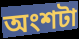
অংশটা